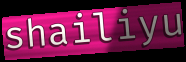
shailiyu